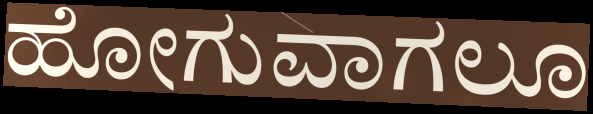
ಹೋಗುವಾಗಲೂ